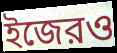
ইজেরও